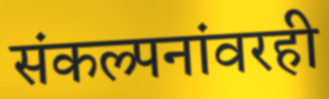
संकल्पनांवरही